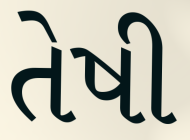
તેષી